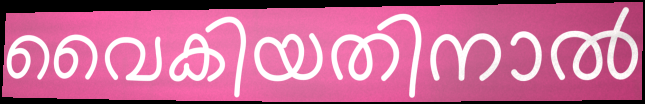
വൈകിയതിനാൽ